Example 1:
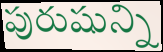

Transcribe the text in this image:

పురుషున్ని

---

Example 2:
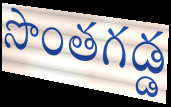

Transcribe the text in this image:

సొంతగడ్డ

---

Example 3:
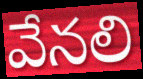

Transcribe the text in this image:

వేనలి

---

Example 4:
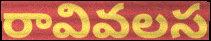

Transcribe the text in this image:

రావివలస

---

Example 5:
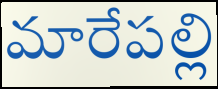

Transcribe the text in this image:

మారేపల్లి